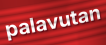
palavutan